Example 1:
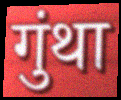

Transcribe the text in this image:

गुंथा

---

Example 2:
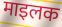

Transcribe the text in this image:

माइलक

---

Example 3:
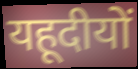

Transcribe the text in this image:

यहूदीयों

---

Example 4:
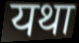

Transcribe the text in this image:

यथा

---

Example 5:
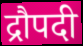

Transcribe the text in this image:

द्रौपदी